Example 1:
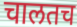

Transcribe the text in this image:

चालतच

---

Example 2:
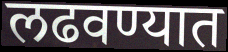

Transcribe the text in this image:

लढवण्यात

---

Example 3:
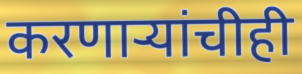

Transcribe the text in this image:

करणाऱ्यांचीही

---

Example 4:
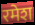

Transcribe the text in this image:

रमेश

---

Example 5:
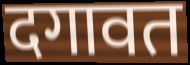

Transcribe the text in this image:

दगावत